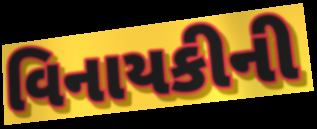
વિનાયકીની